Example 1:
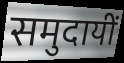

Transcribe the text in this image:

समुदायीं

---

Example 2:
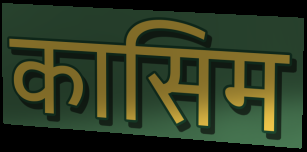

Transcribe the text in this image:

कासिम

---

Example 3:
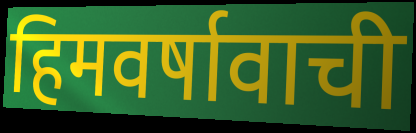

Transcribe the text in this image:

हिमवर्षावाची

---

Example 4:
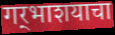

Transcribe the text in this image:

गर्भाशयाचा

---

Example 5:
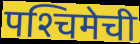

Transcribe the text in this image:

पश्चिमेची